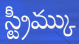
స్ట్రీమ్కు